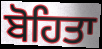
ਬੋਹਿਤਾ